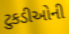
ટુકડીઓની